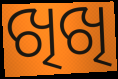
ଖିଖି